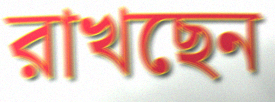
রাখছেন